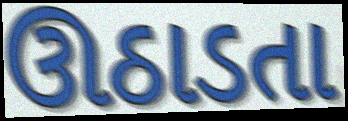
ઊઠાડતા